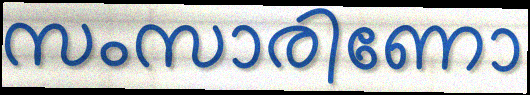
സംസാരിണോ